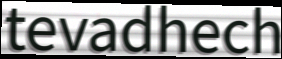
tevadhech